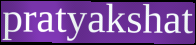
pratyakshat